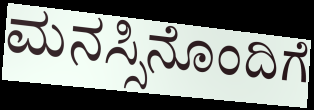
ಮನಸ್ಸಿನೊಂದಿಗೆ